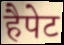
हैपेट